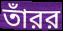
তাঁরর